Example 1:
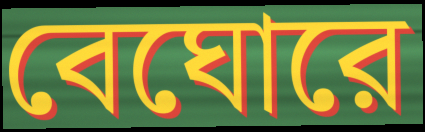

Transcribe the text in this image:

বেঘোরে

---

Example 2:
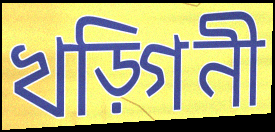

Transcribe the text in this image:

খড়্গিনী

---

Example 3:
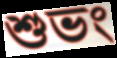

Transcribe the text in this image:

শুভং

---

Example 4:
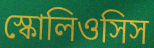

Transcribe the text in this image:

স্কোলিওসিস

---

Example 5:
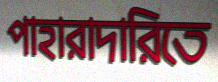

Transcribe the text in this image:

পাহারাদারিতে